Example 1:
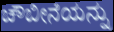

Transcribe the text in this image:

ಚೌಬೀನೆಯನ್ನು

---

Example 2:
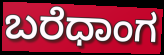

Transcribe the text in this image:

ಬರೆಧಾಂಗ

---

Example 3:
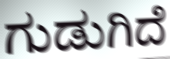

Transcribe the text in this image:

ಗುಡುಗಿದೆ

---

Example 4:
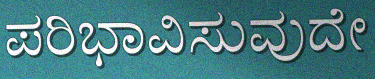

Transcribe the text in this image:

ಪರಿಭಾವಿಸುವುದೇ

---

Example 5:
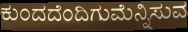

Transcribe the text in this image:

ಕುಂದದೆಂದಿಗುಮೆನ್ನಿಸುವ